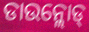
ଡାଉନ୍ଲୋଡ୍